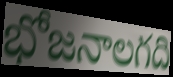
భోజనాలగది